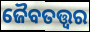
ଜୈବତତ୍ତ୍ୱର